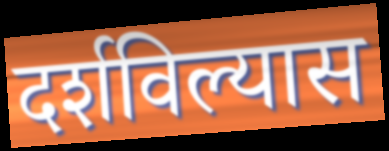
दर्शविल्यास